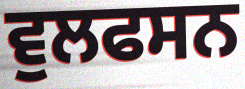
ਵੁਲਫਸਨ